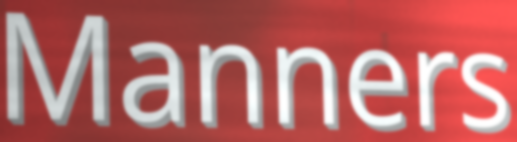
Manners